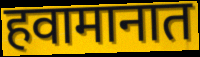
हवामानात